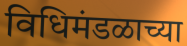
विधिमंडळाच्या